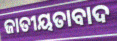
ଜାତୀୟତାବାଦ